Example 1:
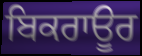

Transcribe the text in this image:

ਬਿਕਰਾਊਰ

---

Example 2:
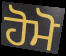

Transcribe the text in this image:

ਹੋਮੋ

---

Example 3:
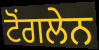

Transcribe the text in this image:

ਟੋਂਗਲੇਨ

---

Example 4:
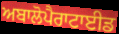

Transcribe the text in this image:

ਅਬਾਲੋਪੈਰਾਟਾਈਡ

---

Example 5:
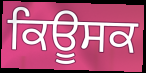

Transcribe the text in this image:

ਕਿਊਸਕ